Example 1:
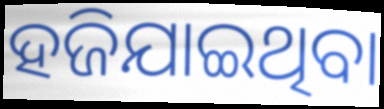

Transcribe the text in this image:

ହଜିଯାଇଥିବା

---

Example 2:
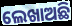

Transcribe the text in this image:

ଲେଖାଅଛି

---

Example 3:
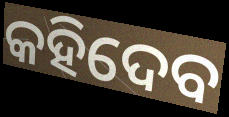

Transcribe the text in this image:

କହିଦେବ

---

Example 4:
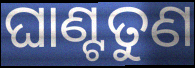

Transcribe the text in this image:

ଘାଣ୍ଟତୁଣ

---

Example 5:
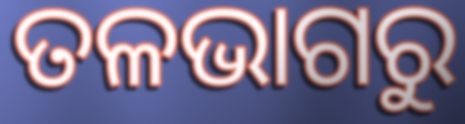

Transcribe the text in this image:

ତଳଭାଗରୁ